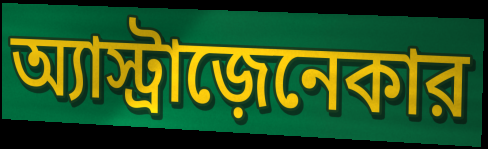
অ্যাস্ট্রাজ়েনেকার